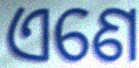
ଏଣେ